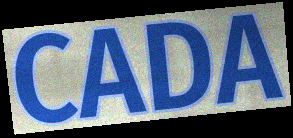
CADA